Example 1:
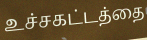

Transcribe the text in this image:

உச்சகட்டத்தை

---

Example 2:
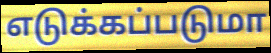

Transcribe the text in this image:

எடுக்கப்படுமா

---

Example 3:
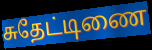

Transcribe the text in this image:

சுதேட்டிணை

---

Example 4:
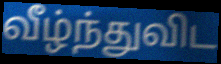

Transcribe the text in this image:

வீழ்ந்துவிட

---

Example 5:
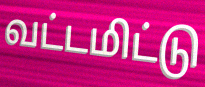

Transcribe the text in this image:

வட்டமிட்டு